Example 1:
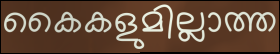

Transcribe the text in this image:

കൈകളുമില്ലാത്ത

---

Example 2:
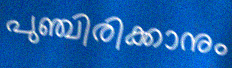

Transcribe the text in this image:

പുഞ്ചിരിക്കാനും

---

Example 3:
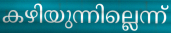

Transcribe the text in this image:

കഴിയുന്നില്ലെന്ന്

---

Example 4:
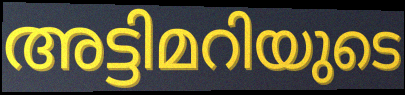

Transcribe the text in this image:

അട്ടിമറിയുടെ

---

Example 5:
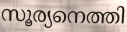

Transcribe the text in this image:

സൂര്യനെത്തി